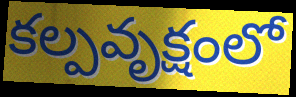
కల్పవృక్షంలో